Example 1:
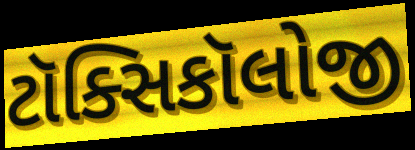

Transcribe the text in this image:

ટૉક્સિકૉલોજી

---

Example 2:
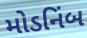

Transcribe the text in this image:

મોડનિંબ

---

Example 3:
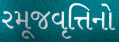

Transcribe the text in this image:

રમૂજવૃત્તિનો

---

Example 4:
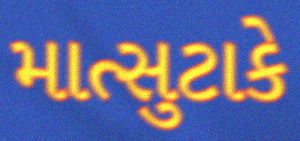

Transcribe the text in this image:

માત્સુટાકે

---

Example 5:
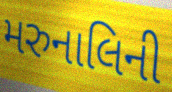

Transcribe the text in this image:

મરુનાલિની